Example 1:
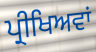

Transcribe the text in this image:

ਪ੍ਰੀਖਿਅਵਾਂ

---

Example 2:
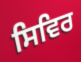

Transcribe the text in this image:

ਸਿਵਿਰ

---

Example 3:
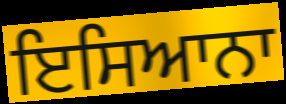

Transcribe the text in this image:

ਇਸਿਆਨਾ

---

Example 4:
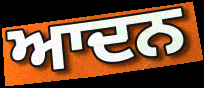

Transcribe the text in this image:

ਆਦਨ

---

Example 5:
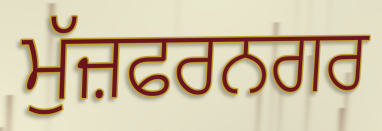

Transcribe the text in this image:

ਮੁੱਜ਼ਫਰਨਗਰ